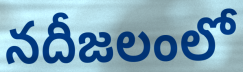
నదీజలంలో